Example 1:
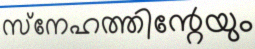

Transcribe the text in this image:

സ്‌നേഹത്തിന്റേയും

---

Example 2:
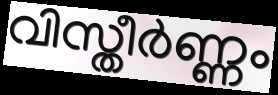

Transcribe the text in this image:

വിസ്തീർണ്ണം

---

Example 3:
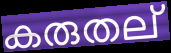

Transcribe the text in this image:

കരുതല്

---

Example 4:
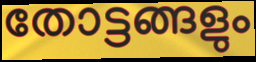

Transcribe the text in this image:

തോട്ടങ്ങളും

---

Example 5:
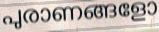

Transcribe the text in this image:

പുരാണങ്ങളോ